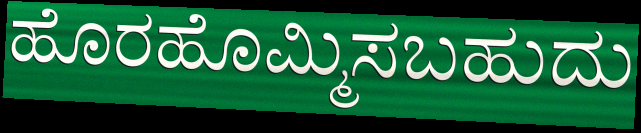
ಹೊರಹೊಮ್ಮಿಸಬಹುದು